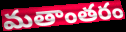
మతాంతరం